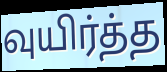
வுயிர்த்த